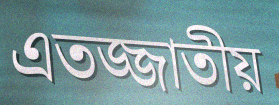
এতজ্জাতীয়